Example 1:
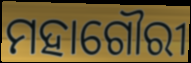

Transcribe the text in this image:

ମହାଗୌରୀ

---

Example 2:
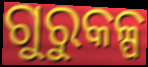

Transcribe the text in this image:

ଗୁରୁକଳ୍ପ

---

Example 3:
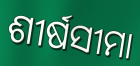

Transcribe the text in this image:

ଶୀର୍ଷସୀମା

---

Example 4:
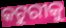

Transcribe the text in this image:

କଟୁରୀକୁ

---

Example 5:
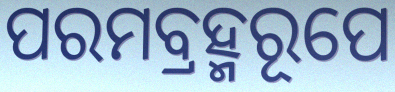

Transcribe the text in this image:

ପରମବ୍ରହ୍ମରୂପେ